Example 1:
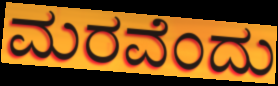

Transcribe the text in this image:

ಮರವೆಂದು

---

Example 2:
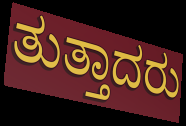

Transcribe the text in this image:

ತುತ್ತಾದರು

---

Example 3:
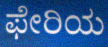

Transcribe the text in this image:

ಫೇರಿಯ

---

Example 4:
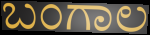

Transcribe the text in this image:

ಬಂಗಾಲ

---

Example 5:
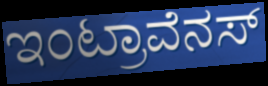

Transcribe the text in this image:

ಇಂಟ್ರಾವೆನಸ್